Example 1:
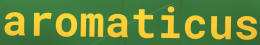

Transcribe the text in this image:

aromaticus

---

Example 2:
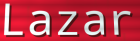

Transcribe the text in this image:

Lazar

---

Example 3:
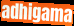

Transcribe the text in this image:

adhigama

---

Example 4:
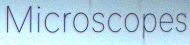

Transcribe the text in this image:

Microscopes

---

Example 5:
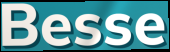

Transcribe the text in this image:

Besse